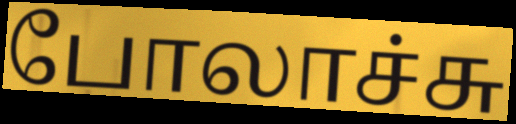
போலாச்சு